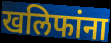
खलिफांना